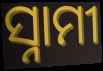
ସ୍ନାମୀ